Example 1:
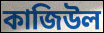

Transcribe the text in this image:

কাজিউল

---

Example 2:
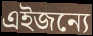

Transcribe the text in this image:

এইজন্যে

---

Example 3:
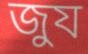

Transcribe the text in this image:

জুয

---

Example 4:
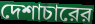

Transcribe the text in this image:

দেশাচারের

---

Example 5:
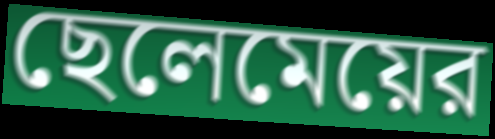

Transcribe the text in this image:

ছেলেমেয়ের